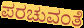
ಪರಚುವಂತೆ